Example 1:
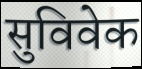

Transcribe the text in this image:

सुविवेक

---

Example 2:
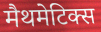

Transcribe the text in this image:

मैथमेटिक्स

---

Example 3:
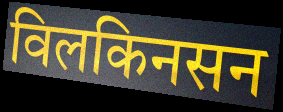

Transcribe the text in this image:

विलकिनसन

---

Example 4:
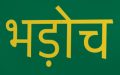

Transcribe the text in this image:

भड़ोच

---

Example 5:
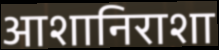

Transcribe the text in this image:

आशानिराशा